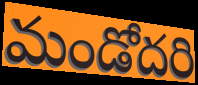
మండోదరి